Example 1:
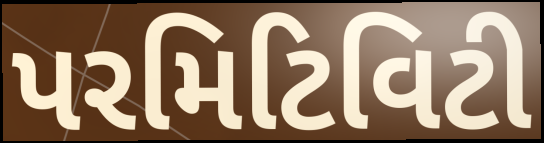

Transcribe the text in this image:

પરમિટિવિટી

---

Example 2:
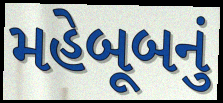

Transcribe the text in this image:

મહેબૂબનું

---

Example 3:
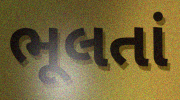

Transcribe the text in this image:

ભૂલતાં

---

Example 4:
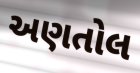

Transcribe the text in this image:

અણતોલ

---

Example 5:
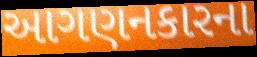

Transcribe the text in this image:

આગણનકારના